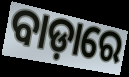
ବାଡ଼ାରେ